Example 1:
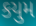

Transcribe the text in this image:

કયુમ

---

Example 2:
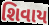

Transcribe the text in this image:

શિવાય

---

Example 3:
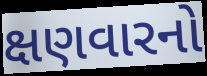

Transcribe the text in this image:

ક્ષણવારનો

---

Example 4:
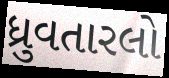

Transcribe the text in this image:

ધ્રુવતારલો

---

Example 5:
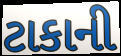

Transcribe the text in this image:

ટાકાની